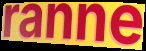
ranne